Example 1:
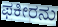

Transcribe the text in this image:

ಫಕೀರನು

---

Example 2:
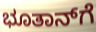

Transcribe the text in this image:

ಭೂತಾನ್‌ಗೆ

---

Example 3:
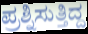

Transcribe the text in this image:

ಪ್ರಶ್ನಿಸುತ್ತಿದ್ದ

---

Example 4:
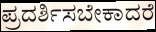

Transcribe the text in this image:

ಪ್ರದರ್ಶಿಸಬೇಕಾದರೆ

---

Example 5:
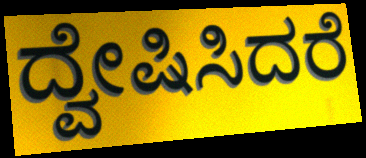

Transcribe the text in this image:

ದ್ವೇಷಿಸಿದರೆ